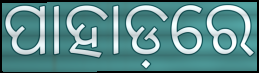
ପାହାଡ଼ରେ